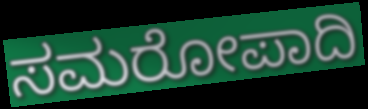
ಸಮರೋಪಾದಿ